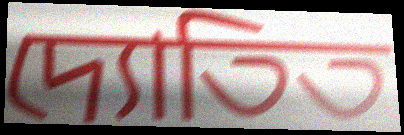
দ্যোতিত